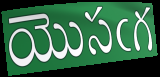
యొసఁగ